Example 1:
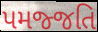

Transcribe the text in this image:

પમજ્જતિ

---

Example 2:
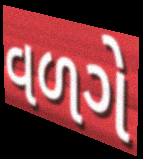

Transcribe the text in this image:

વળગે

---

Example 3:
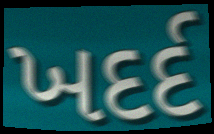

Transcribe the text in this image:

ખદર્દ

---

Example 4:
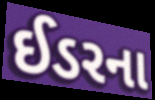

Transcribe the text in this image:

ઈડરના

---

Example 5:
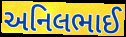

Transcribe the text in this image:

અનિલભાઈ